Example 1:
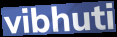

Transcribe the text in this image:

vibhuti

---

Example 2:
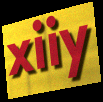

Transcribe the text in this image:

xiiy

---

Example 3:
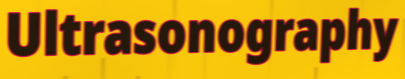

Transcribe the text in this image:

Ultrasonography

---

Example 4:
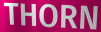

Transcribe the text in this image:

THORN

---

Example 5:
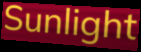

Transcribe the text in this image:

Sunlight